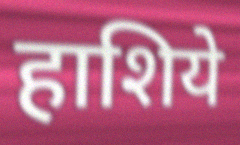
हाशिये